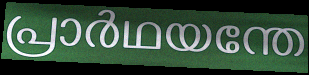
പ്രാർഥയന്തേ